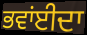
ਭਵਾਂਈਦਾ